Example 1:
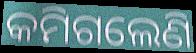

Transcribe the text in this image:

କମିଗଲେଣି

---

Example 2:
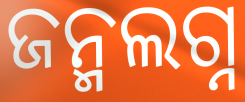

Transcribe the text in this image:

ଜନ୍ମଲଗ୍ନ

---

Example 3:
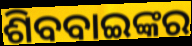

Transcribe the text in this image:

ଶିବବାଇଙ୍କର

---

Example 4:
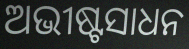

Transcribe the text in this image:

ଅଭୀଷ୍ଟସାଧନ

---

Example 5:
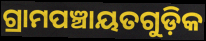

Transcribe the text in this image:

ଗ୍ରାମପଞ୍ଚାୟତଗୁଡ଼ିକ